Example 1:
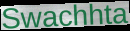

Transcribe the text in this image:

Swachhta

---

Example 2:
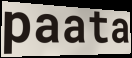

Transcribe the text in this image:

paata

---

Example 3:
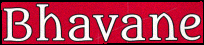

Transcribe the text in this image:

Bhavane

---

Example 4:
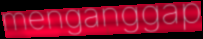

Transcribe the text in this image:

menganggap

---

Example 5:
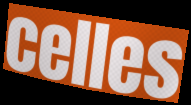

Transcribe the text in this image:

celles